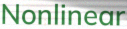
Nonlinear